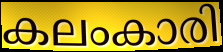
കലംകാരി